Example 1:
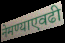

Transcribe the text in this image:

नेमण्याएवढी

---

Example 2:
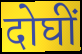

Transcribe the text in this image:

दोघीं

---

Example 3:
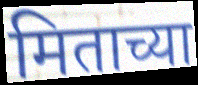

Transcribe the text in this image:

मिताच्या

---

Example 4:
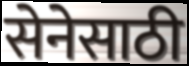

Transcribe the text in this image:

सेनेसाठी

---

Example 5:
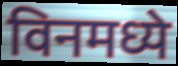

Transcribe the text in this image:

विनमध्ये